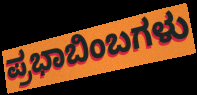
ಪ್ರಭಾಬಿಂಬಗಳು